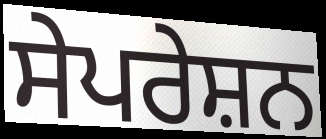
ਸੇਪਰੇਸ਼ਨ